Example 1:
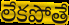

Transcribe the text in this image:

లేకపోతే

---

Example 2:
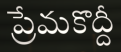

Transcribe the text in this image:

ప్రేమకొద్దీ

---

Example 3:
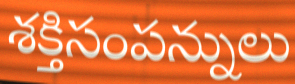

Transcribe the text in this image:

శక్తిసంపన్నులు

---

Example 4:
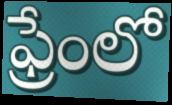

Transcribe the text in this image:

ఫ్రేంలో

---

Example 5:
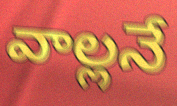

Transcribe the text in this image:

వాల్లనే